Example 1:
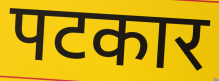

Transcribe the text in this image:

पटकार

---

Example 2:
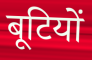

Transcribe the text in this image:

बूटियों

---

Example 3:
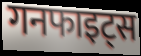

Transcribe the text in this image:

गनफाइट्स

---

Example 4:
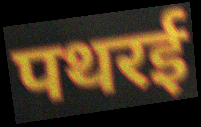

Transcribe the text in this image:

पथरई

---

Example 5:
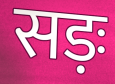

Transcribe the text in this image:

सड़ः